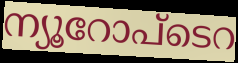
ന്യൂറോപ്ടെറ